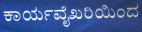
ಕಾರ್ಯವೈಖರಿಯಿಂದ